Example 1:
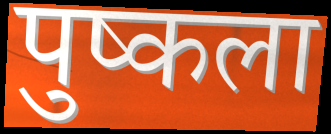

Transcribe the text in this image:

पुष्कला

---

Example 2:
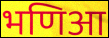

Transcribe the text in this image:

भणिआ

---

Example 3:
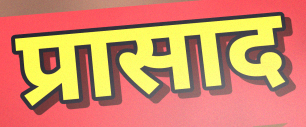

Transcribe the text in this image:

प्रासाद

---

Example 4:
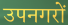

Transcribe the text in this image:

उपनगरों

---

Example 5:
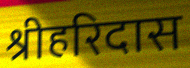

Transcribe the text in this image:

श्रीहरिदास